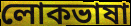
লোকভাষা